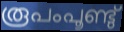
രൂപംപൂണ്ടു്